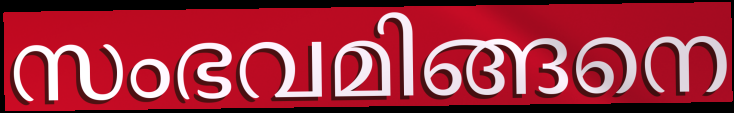
സംഭവമിങ്ങനെ